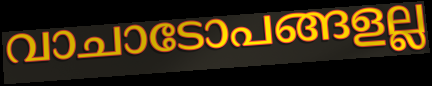
വാചാടോപങ്ങളല്ല